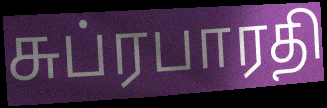
சுப்ரபாரதி